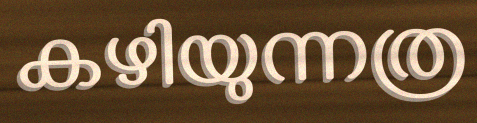
കഴിയുന്നത്ര